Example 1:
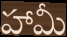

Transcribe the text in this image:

హామీ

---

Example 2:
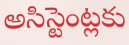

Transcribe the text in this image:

అసిస్టెంట్లకు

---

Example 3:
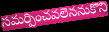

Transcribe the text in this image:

సమర్పించవలెననుకొని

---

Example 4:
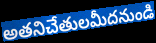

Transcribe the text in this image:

అతనిచేతులమీదనుండి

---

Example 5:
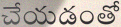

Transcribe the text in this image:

చేయడంతో